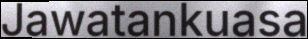
Jawatankuasa